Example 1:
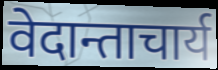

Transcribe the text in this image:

वेदान्ताचार्य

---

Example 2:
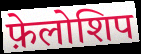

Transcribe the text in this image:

फ़ेलोशिप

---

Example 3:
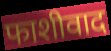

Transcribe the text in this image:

फाशीवाद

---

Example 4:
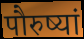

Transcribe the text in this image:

पौरुष्यां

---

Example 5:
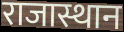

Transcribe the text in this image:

राजास्थान